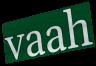
vaah